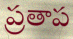
ప్రతాప